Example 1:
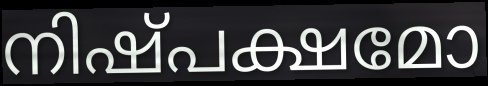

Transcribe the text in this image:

നിഷ്പക്ഷമോ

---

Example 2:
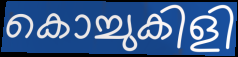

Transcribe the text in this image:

കൊച്ചുകിളി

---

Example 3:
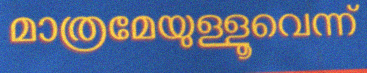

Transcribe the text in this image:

മാത്രമേയുള്ളൂവെന്ന്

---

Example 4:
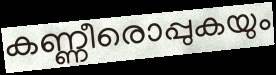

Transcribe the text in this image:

കണ്ണീരൊപ്പുകയും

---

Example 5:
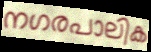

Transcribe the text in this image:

നഗരപാലിക